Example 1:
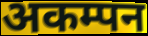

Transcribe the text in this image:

अकम्पन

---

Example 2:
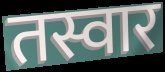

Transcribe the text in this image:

तस्वार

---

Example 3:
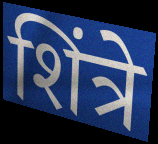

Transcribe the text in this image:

शिंत्रे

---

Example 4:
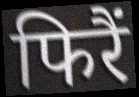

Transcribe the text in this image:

फिरैं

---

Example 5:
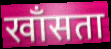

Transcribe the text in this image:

खाँसता